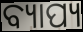
ବ୍ଯାପ୍ୟ